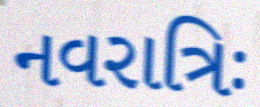
નવરાત્રિઃ